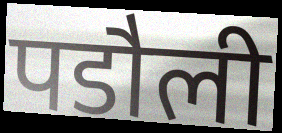
पडौली